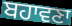
ਬਹਾਵਣਾ